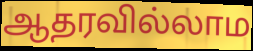
ஆதரவில்லாம